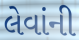
લેવાંની